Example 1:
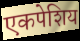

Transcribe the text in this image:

एकपेशिय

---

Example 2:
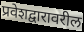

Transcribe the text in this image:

प्रवेशद्वारावरील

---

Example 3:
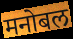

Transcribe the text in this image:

मनोबल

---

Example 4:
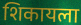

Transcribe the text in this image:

शिकायला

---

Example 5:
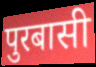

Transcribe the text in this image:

पुरबासी